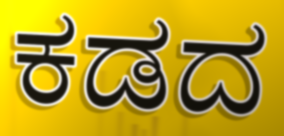
ಕಡದ